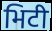
भिटी